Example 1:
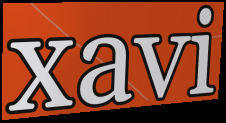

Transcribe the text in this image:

xavi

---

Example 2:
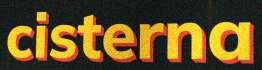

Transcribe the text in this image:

cisterna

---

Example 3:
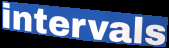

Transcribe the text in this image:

intervals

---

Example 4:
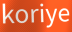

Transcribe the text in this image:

koriye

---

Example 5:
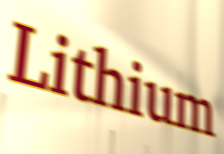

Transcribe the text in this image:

Lithium